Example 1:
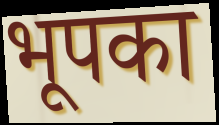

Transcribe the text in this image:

भूपका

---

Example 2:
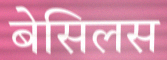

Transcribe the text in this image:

बेसिलस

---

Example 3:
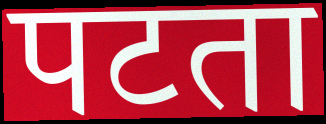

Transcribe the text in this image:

पटता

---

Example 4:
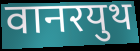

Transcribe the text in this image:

वानरयुथ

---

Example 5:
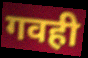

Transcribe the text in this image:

गवही